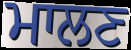
ਮਾਲਣ